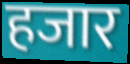
हजार